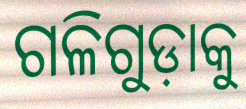
ଗଳିଗୁଡ଼ାକୁ